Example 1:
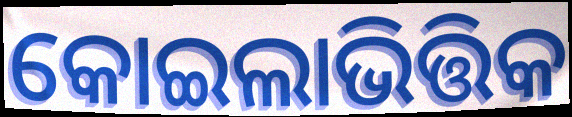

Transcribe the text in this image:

କୋଇଲାଭିତ୍ତିକ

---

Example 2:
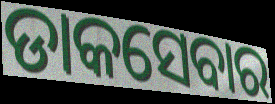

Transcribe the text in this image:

ଡାକସେବାର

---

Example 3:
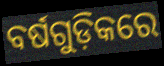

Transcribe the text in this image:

ବର୍ଷଗୁଡ଼ିକରେ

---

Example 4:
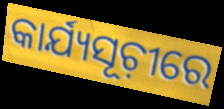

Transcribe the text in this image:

କାର୍ଯ୍ୟସୂଚ଼ୀରେ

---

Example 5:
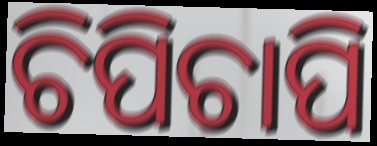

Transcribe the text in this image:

ଚିପିଚାପି